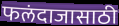
फलंदाजासाठी